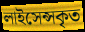
লাইসেন্সকৃত